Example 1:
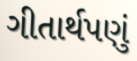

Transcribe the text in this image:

ગીતાર્થપણું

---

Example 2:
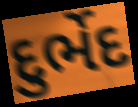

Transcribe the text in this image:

દુર્ભેદ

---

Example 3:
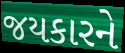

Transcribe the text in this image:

જયકારને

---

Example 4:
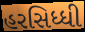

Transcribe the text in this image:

હરસિધ્ધી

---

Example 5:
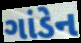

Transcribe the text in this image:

ગાંડેન